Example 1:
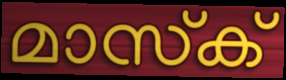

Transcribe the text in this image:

മാസ്‌ക്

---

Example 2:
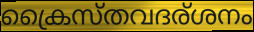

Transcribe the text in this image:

ക്രൈസ്തവദര്ശനം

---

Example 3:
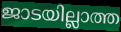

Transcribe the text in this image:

ജാടയില്ലാത്ത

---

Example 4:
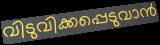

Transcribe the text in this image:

വിടുവിക്കപ്പെടുവാൻ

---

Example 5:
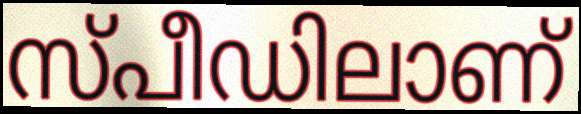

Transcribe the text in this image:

സ്പീഡിലാണ്